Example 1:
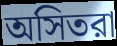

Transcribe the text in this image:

অসিতরা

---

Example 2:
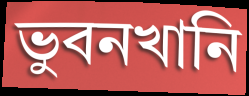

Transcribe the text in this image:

ভুবনখানি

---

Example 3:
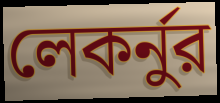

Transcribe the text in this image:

লেকর্নুর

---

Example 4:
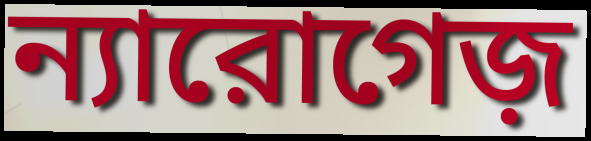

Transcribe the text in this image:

ন্যারোগেজ়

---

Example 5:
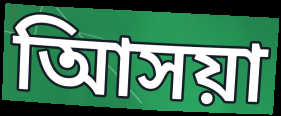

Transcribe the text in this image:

আিসয়া